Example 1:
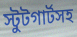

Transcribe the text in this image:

স্টুটগার্টসহ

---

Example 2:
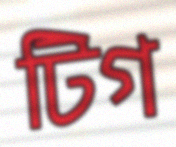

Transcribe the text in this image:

টিগ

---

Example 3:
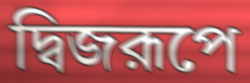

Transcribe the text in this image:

দ্বিজরূপে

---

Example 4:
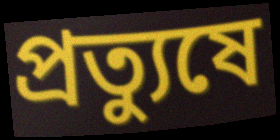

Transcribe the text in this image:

প্রত্যুষে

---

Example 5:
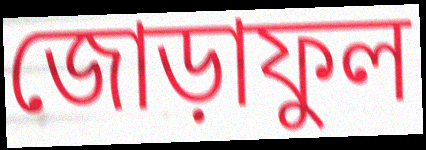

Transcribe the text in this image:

জোড়াফুল